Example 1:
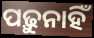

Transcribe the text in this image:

ପଢ଼ୁନାହିଁ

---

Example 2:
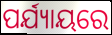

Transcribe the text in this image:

ପର୍ଯ୍ୟାୟରେ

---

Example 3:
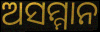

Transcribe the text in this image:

ଅସମ୍ମାନ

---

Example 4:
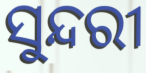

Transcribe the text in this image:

ସୁନ୍ଦରୀ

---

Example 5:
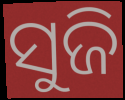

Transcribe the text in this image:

ସୁଜି